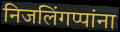
निजलिंगप्पांना